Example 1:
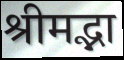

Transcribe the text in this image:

श्रीमद्भा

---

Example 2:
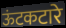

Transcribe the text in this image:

ऊंटकटारे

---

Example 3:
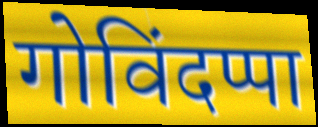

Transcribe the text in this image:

गोविंदप्पा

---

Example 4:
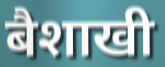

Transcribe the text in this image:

बैशाखी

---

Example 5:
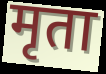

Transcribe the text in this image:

मृता